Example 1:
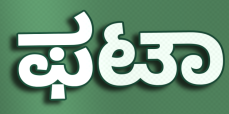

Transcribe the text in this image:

ಫಟಾ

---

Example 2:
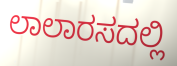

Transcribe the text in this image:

ಲಾಲಾರಸದಲ್ಲಿ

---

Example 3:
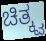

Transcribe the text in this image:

ಚಿತ್ಕ್ವ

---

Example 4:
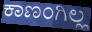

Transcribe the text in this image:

ಕಾಣಂಗಿಲ್ಲ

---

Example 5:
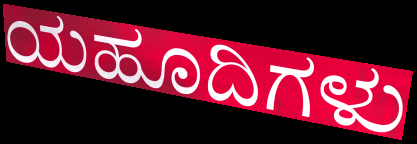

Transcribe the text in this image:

ಯಹೂದಿಗಳು